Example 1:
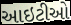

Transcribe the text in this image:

આઇટીઓ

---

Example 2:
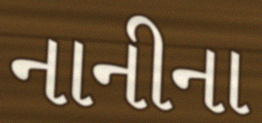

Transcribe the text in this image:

નાનીના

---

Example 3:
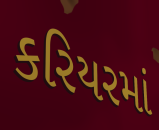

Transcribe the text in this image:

કરિયરમાં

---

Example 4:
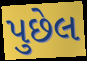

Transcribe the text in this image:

પુછેલ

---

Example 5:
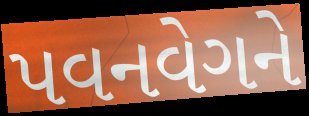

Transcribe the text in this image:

પવનવેગને